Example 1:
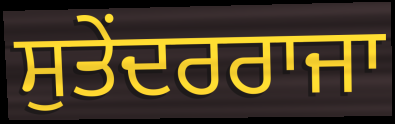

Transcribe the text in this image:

ਸੁਤੇਂਦਰਰਾਜਾ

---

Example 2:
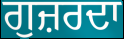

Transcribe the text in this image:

ਗੁਜ਼ਰਦਾ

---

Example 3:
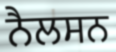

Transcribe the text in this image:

ਨੈਲਸਨ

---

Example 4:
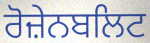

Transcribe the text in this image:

ਰੋਜ਼ੇਨਬਲਿਟ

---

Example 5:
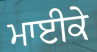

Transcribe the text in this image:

ਮਾਈਕੇ